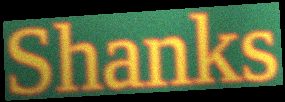
Shanks